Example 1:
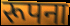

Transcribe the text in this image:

रूपना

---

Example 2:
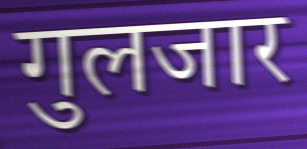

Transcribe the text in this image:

गुलजार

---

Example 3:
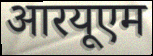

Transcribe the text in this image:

आरयूएम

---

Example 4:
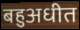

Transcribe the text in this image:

बहुअधीत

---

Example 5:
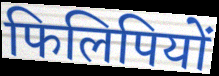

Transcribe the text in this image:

फिलिपियों